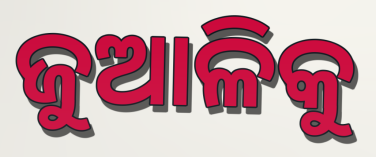
ଜୁଆଳିକୁ